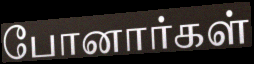
போனார்கள்